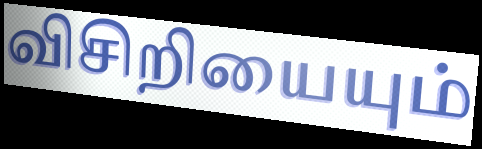
விசிறியையும்